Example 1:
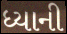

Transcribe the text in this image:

ધ્યાની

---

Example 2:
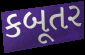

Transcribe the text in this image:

કબૂતર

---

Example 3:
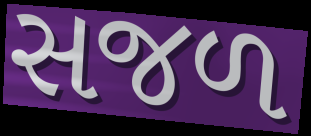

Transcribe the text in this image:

સજળ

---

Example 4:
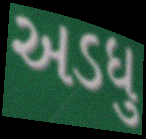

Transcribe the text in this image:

અડધુ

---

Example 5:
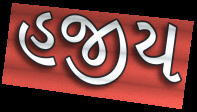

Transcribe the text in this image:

હજીય